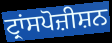
ਟ੍ਰਾਂਸਪੋਜ਼ੀਸ਼ਨ